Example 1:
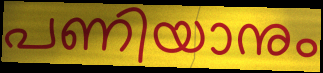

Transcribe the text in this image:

പണിയാനും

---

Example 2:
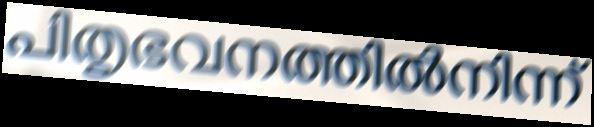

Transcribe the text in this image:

പിതൃഭവനത്തിൽനിന്ന്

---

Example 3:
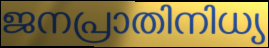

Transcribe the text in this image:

ജനപ്രാതിനിധ്യ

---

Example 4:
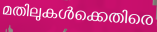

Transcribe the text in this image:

മതിലുകൾക്കെതിരെ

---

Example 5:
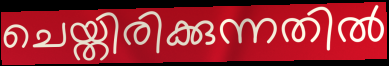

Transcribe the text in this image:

ചെയ്തിരിക്കുന്നതിൽ